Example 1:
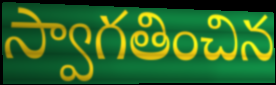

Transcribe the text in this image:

స్వాగతించిన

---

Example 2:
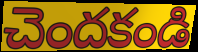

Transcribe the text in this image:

చెందకండి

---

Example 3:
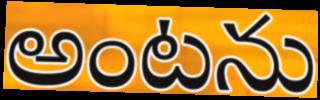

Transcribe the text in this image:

అంటను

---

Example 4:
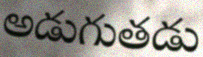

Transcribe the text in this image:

అడుగుతడు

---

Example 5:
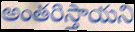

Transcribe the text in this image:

అంతరిస్తాయని